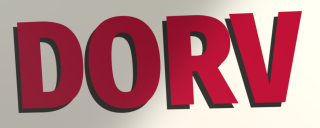
DORV